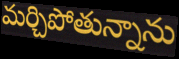
మర్చిపోతున్నాను